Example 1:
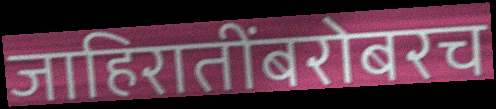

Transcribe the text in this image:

जाहिरातींबरोबरच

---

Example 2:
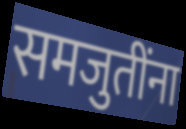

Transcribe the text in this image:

समजुतींना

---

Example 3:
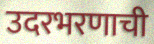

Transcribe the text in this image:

उदरभरणाची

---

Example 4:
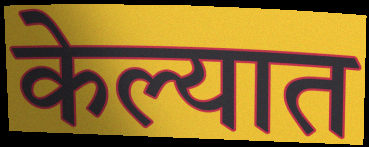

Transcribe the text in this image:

केल्यात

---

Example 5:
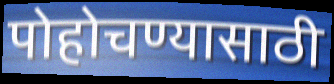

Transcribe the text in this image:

पोहोचण्यासाठी